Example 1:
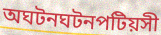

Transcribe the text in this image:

অঘটনঘটনপটিয়সী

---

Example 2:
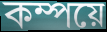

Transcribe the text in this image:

কম্পয়ে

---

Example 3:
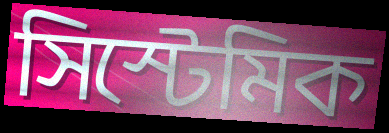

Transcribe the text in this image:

সিস্টেমিক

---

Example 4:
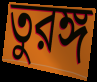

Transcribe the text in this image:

তুরঙ্গ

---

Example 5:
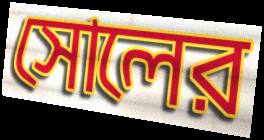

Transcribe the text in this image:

সোলের